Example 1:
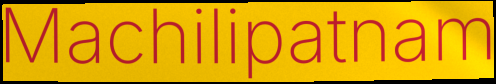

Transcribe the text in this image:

Machilipatnam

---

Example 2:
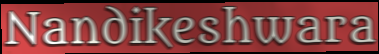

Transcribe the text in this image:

Nandikeshwara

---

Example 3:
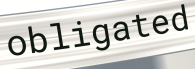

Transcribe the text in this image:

obligated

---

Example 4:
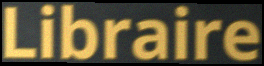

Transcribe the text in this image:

Libraire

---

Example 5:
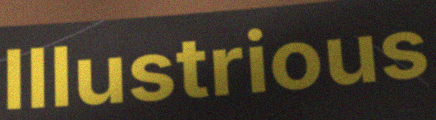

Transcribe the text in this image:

Illustrious